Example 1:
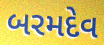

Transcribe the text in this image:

બરમદેવ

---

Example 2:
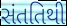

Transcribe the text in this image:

સંતતિથી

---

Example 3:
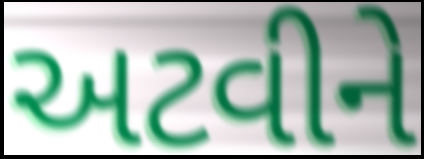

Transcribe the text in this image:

અટવીને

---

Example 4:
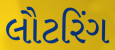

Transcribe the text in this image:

લૌટરિંગ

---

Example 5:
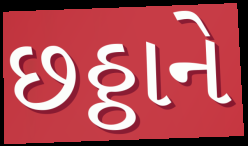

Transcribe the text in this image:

છઠ્ઠાને